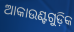
ଆକାଉଣ୍ଟଗୁଡ଼ିକ